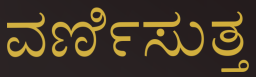
ವರ್ಣಿಸುತ್ತ